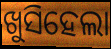
ଖୁସିହେଲା